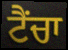
ਟੈਂਚਾ